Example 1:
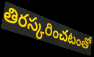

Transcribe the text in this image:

తిరస్కరించటంతో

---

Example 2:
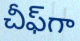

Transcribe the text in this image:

చీఫ్‌గా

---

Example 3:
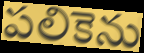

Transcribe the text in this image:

పలికెను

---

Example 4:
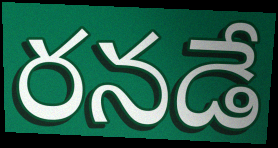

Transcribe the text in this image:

రనడే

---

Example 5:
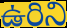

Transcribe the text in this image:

ఉరిని